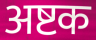
अष्टक